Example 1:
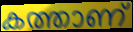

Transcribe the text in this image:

കത്താണ്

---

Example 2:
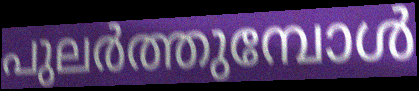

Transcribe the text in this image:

പുലർത്തുമ്പോൾ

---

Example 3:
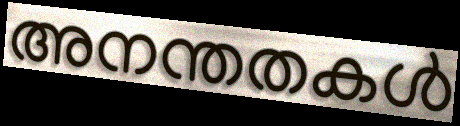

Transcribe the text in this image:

അനന്തതകൾ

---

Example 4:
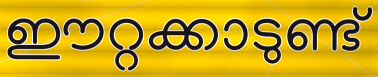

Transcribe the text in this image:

ഈറ്റക്കാടുണ്ട്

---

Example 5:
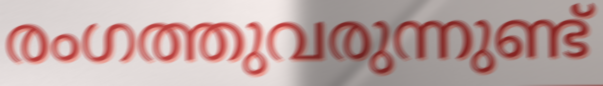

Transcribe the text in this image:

രംഗത്തുവരുന്നുണ്ട്